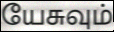
யேசுவும்